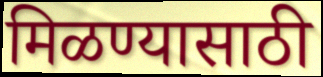
मिळण्यासाठी